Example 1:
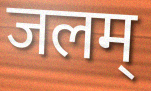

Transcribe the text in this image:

जलम्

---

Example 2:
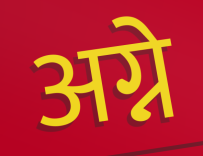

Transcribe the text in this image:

अग्ने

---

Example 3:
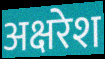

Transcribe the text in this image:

अक्षरेश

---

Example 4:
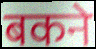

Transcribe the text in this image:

बकने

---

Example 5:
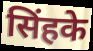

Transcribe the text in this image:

सिंहके